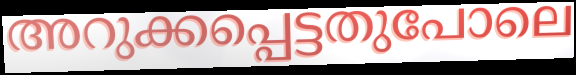
അറുക്കപ്പെട്ടതുപോലെ